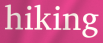
hiking